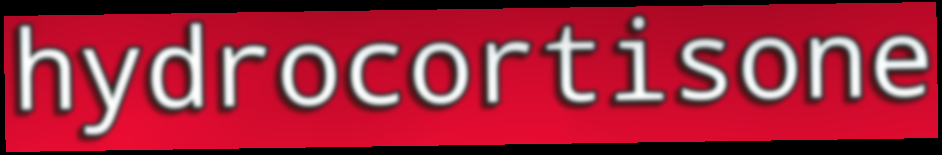
hydrocortisone